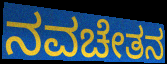
ನವಚೇತನ